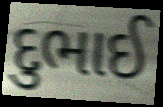
દુભાઈ